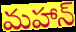
మహాన్